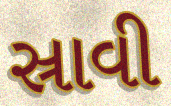
સ્રાવી